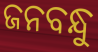
ଜନବନ୍ଧୁ